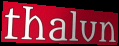
thalun